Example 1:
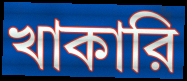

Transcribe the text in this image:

খাকারি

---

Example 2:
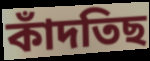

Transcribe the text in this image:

কাঁদতিছ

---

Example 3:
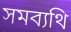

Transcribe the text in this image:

সমব্যথি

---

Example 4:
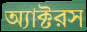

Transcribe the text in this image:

অ্যাক্টরস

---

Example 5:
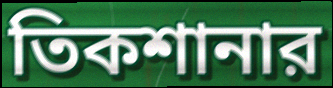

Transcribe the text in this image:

তিকশানার